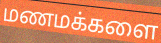
மணமக்களை